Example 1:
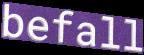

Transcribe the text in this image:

befall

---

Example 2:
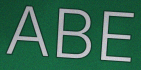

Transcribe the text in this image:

ABE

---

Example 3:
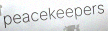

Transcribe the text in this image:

peacekeepers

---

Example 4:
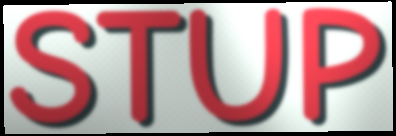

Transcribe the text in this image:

STUP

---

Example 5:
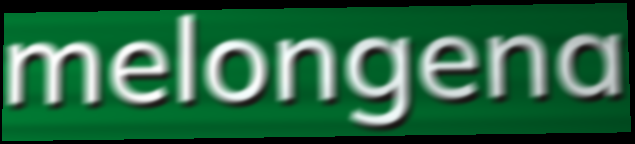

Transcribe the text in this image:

melongena